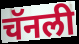
चॅनली